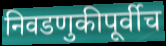
निवडणुकीपूर्वीच